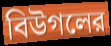
বিউগলের